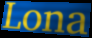
Lona